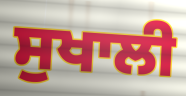
ਸੁਖਾਲੀ